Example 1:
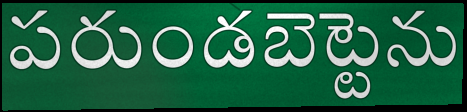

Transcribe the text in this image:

పరుండబెట్టెను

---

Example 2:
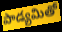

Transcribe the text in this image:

పాడ్యమితో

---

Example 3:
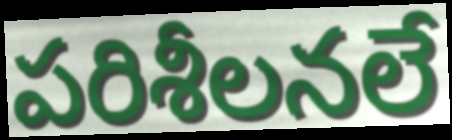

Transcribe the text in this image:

పరిశీలనలే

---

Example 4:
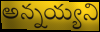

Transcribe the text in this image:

అన్నయ్యని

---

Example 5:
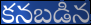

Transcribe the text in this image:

కనబడిన